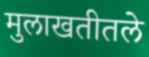
मुलाखतीतले